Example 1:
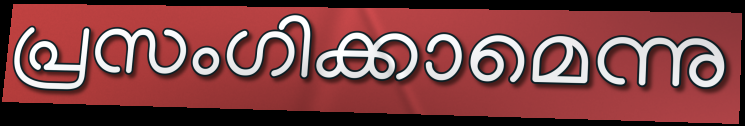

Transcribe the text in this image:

പ്രസംഗിക്കാമെന്നു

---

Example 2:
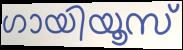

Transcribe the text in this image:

ഗായിയൂസ്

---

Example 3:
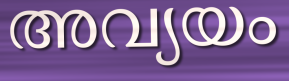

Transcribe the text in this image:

അവ്യയം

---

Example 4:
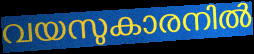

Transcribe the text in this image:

വയസുകാരനിൽ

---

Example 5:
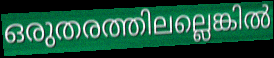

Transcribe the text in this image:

ഒരുതരത്തിലല്ലെങ്കിൽ